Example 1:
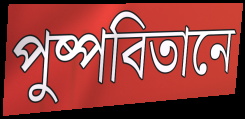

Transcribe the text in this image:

পুষ্পবিতানে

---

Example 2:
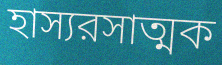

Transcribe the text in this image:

হাস্যরসাত্মক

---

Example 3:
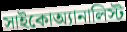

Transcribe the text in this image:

সাইকোঅ্যানালিস্ট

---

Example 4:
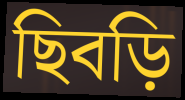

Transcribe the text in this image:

ছিবড়ি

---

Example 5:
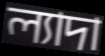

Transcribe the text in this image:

ল্যাদা